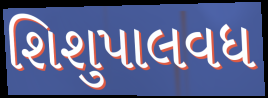
શિશુપાલવધ